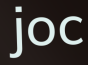
joc